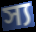
স্য